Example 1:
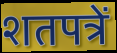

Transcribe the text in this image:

शतपत्रें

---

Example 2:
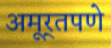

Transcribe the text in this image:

अमूर्तपणे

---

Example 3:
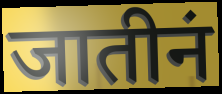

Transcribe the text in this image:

जातीनं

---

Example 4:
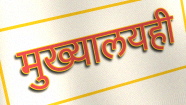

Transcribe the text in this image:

मुख्यालयही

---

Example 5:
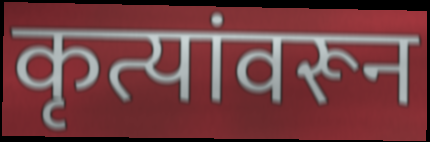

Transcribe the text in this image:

कृत्यांवरून